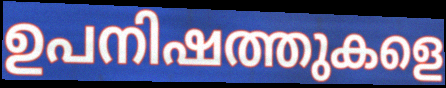
ഉപനിഷത്തുകളെ